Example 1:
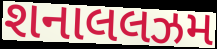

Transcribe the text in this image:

શનાલલઝમ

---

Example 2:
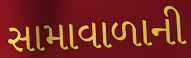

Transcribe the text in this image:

સામાવાળાની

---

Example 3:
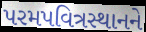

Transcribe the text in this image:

પરમપવિત્રસ્થાનને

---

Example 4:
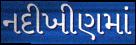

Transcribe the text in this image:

નદીખીણમાં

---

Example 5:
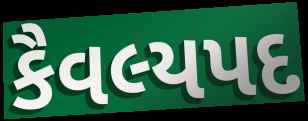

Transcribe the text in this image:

કૈવલ્યપદ